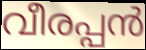
വീരപ്പൻ